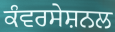
ਕੰਵਰਸੇਸ਼ਨਲ